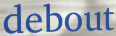
debout